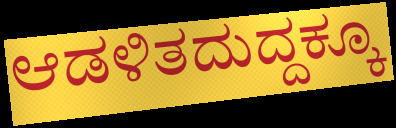
ಆಡಳಿತದುದ್ದಕ್ಕೂ